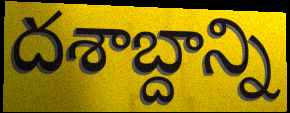
దశాబ్దాన్ని